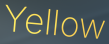
Yellow